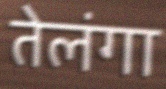
तेलंगा